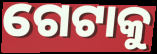
ଗେଟାକୁ